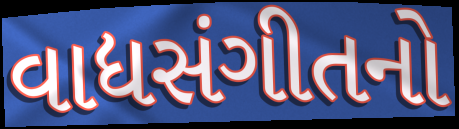
વાદ્યસંગીતનો